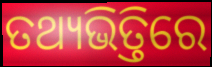
ତଥ୍ୟଭିତ୍ତିରେ